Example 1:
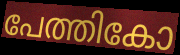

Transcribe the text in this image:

പേത്തികോ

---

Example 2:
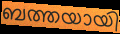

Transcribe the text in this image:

ബത്തയായി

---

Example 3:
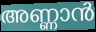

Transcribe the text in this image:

അണ്ണാൻ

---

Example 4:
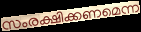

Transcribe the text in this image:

സംരക്ഷിക്കണമെന്ന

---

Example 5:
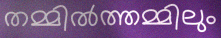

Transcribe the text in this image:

തമ്മിൽത്തമ്മിലും